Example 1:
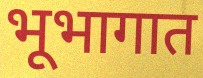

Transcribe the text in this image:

भूभागात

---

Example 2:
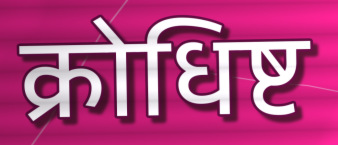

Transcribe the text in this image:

क्रोधिष्ट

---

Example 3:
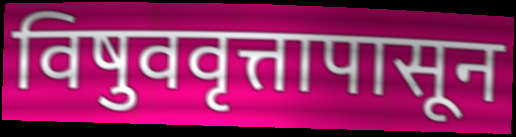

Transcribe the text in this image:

विषुववृत्तापासून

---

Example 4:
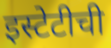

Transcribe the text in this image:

इस्टेटीची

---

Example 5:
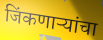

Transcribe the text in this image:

जिंकणाऱ्यांचा